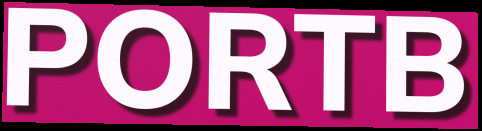
PORTB